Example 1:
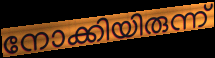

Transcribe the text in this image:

നോക്കിയിരുന്ന്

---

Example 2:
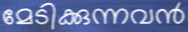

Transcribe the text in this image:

മേടിക്കുന്നവൻ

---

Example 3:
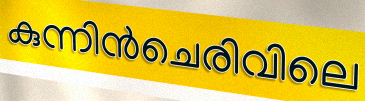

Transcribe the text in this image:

കുന്നിൻചെരിവിലെ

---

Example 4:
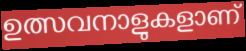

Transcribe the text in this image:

ഉത്സവനാളുകളാണ്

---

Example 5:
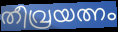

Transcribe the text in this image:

തീവ്രയത്നം